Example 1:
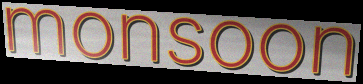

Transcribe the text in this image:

monsoon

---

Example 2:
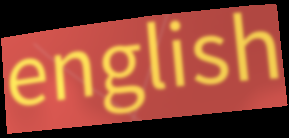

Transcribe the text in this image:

english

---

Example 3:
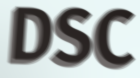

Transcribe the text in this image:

DSC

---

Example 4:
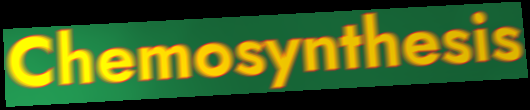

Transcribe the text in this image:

Chemosynthesis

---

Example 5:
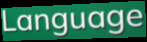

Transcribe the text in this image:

Language